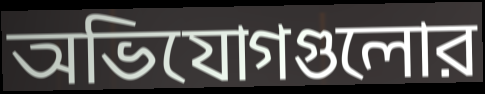
অভিযোগগুলোর